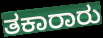
ತಕಾರಾರು